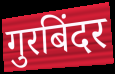
गुरबिंदर